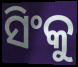
ସିଂକୁ